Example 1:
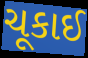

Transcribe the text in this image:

ચૂકાઈ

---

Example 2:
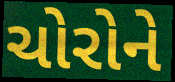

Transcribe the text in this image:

ચોરોને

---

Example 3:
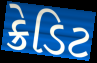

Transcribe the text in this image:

ક્રેડિટ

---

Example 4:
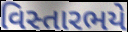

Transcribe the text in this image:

વિસ્તારભયે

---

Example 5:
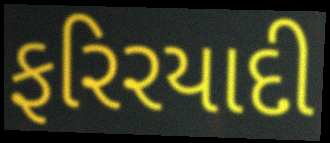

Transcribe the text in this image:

ફરિરયાદી